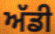
ਅੱਡੀ